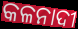
କଳନାଦୀ